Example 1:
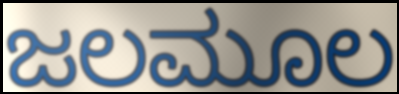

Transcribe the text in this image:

ಜಲಮೂಲ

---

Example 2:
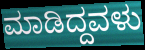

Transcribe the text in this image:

ಮಾಡಿದ್ದವಳು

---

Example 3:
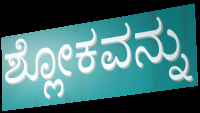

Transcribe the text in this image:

ಶ್ಲೋಕವನ್ನು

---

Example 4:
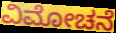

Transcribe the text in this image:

ವಿಮೋಚನೆ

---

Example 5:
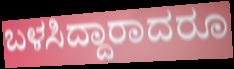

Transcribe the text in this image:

ಬಳಸಿದ್ದಾರಾದರೂ